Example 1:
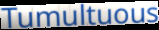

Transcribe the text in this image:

Tumultuous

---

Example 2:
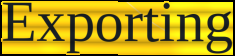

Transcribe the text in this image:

Exporting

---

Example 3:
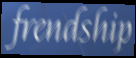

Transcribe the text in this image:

frendship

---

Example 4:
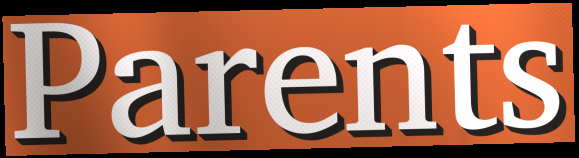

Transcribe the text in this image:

Parents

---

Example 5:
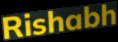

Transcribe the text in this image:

Rishabh